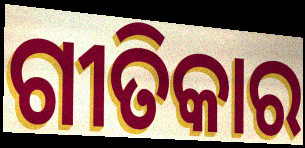
ଗୀତିକାର